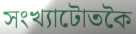
সংখ্যাটোতকৈ